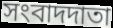
সংবাদদাতা